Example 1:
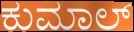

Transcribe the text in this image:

ಕುಮಾಲ್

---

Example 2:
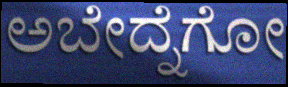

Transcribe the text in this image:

ಅಬೇದ್ನೆಗೋ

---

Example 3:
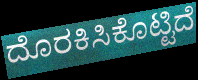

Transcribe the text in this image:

ದೊರಕಿಸಿಕೊಟ್ಟಿದೆ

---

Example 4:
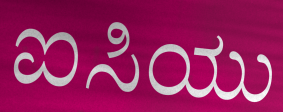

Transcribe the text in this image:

ಐಸಿಯು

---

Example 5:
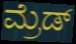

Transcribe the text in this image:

ಮ್ರೆಡ್